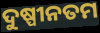
ଦୁଷ୍ପୀନତମ